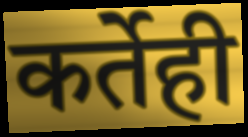
कर्तेही